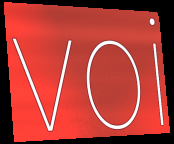
voi